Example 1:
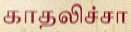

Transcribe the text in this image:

காதலிச்சா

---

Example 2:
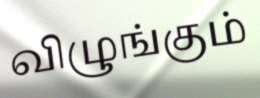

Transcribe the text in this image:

விழுங்கும்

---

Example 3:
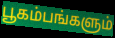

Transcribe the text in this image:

பூகம்பங்களும்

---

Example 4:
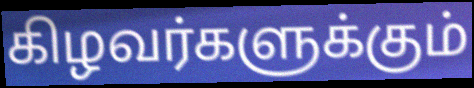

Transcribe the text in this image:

கிழவர்களுக்கும்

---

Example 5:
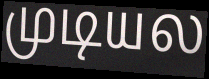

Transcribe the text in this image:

முடியல